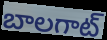
బాలగాట్